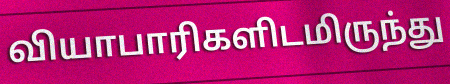
வியாபாரிகளிடமிருந்து